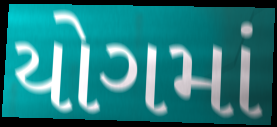
યોગમાં